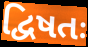
દ્વિષતઃ